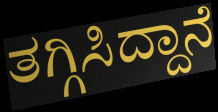
ತಗ್ಗಿಸಿದ್ದಾನೆ